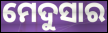
ମେଦୁସାର